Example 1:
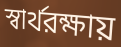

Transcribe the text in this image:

স্বার্থরক্ষায়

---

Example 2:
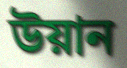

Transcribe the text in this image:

উয়ান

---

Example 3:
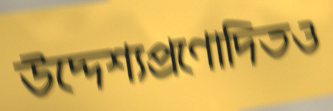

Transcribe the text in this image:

উদ্দেশ্যপ্রণোদিতও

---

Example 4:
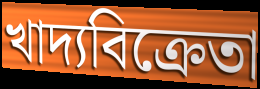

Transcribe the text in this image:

খাদ্যবিক্রেতা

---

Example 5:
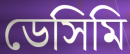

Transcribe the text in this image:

ডেসিমি